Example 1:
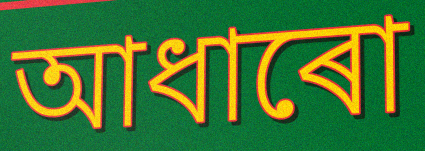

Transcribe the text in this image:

আধাৰো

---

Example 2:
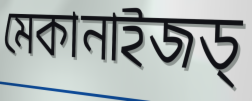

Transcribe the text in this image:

মেকানাইজড্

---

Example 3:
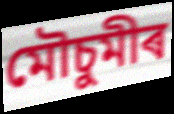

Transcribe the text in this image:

মৌচুমীৰ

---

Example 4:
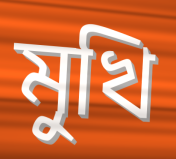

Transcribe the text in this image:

মুখি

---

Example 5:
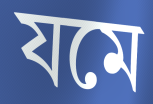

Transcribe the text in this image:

যমে